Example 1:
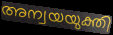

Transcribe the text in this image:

അന്വയയുക്തി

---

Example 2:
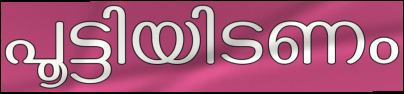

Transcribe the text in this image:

പൂട്ടിയിടണം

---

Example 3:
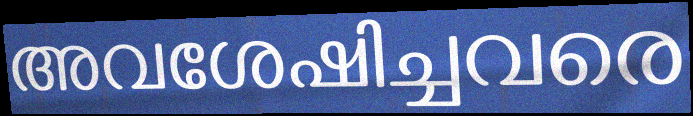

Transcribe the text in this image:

അവശേഷിച്ചവരെ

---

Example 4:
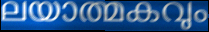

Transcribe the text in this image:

ലയാത്മകവും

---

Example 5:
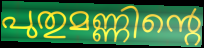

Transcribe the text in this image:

പുതുമണ്ണിന്റെ